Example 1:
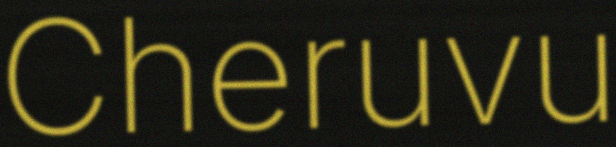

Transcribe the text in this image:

Cheruvu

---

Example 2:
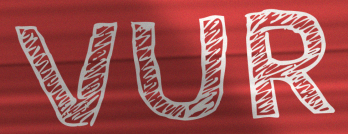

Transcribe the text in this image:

VUR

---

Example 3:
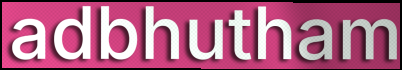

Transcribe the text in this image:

adbhutham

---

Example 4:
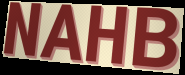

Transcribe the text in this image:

NAHB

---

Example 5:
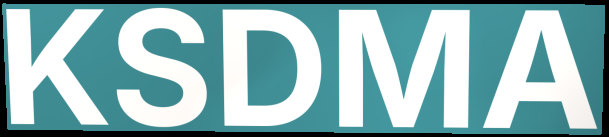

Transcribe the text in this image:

KSDMA